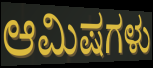
ಆಮಿಷಗಳು